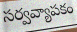
సర్వవ్యాపకం